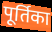
पूर्तिका